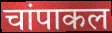
चांपाकल